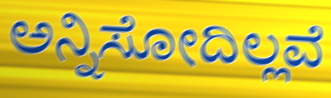
ಅನ್ನಿಸೋದಿಲ್ಲವೆ